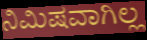
ನಿಮಿಷವಾಗಿಲ್ಲ